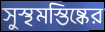
সুস্থমস্তিষ্কের